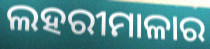
ଲହରୀମାଳାର